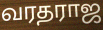
வரதராஜ